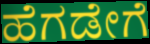
ಹೆಗಡೇಗೆ